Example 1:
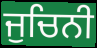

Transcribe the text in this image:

ਜੁਚਿਨੀ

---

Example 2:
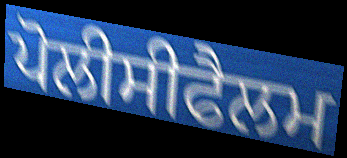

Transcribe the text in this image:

ਪੋਲੀਸੀਫੈਲਮ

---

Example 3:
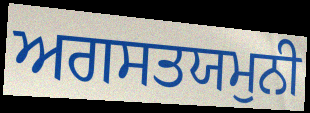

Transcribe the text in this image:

ਅਗਸਤਯਮੁਨੀ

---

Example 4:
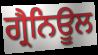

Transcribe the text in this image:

ਗ੍ਰੈਨਿਊਲ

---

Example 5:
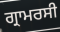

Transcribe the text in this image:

ਗ੍ਰਾਮਰਸੀ